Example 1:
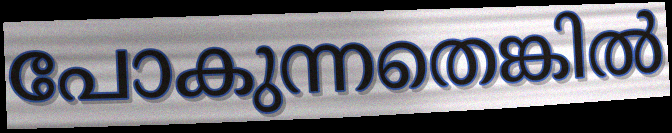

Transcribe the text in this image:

പോകുന്നതെങ്കിൽ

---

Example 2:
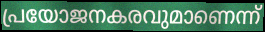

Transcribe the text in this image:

പ്രയോജനകരവുമാണെന്ന്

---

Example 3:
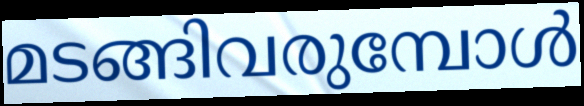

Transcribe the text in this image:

മടങ്ങിവരുമ്പോൾ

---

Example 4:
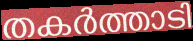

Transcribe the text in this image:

തകർത്താടി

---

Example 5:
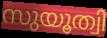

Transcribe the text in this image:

സുയൂത്വി